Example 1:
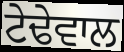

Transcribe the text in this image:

ਟੇਢੇਵਾਲ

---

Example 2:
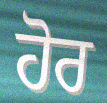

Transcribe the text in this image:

ਹੋਰ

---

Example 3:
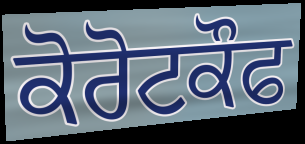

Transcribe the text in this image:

ਕੋਰੋਟਕੌਫ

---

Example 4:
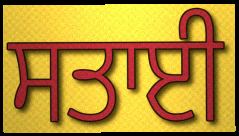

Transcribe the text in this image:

ਸਤਾਈ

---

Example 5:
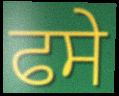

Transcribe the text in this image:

ਫਸੇ